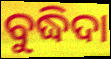
ବୁଦ୍ଧିଦା